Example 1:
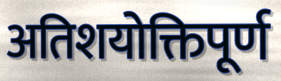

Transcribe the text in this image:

अतिशयोक्तिपूर्ण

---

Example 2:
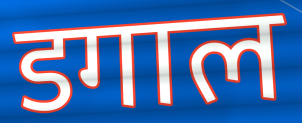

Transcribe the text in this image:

डगाल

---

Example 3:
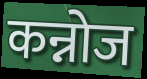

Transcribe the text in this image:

कन्नोज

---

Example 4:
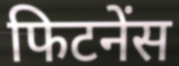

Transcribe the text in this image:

फिटनेंस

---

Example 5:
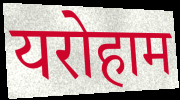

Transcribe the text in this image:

यरोहाम